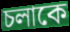
চলাকে